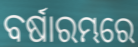
ବର୍ଷାରମ୍ଭରେ